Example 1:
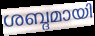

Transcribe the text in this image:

ശബ്ദമായി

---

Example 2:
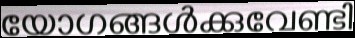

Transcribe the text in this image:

യോഗങ്ങൾക്കുവേണ്ടി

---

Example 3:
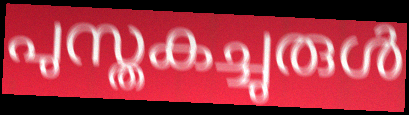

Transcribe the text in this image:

പുസ്തകച്ചുരുൾ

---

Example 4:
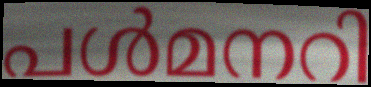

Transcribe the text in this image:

പൾമനറി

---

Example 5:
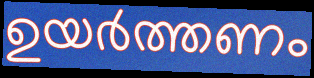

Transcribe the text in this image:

ഉയർത്തണം